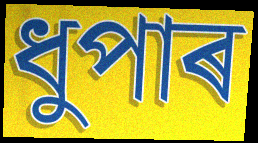
ধুপাৰ